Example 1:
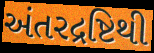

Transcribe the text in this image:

અંતરદ્રષ્ટિથી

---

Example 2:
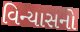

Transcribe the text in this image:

વિન્યાસનો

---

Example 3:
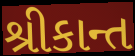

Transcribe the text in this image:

શ્રીકાન્ત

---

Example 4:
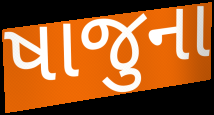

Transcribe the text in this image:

ષાજુના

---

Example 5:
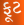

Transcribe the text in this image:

ફૂટ